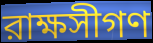
রাক্ষসীগণ